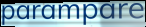
parampare